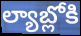
ల్యాబ్లోకి